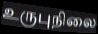
உருபுநிலை